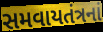
સમવાયતંત્રનાં